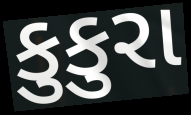
કુકુરા